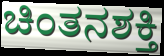
ಚಿಂತನಶಕ್ತಿ